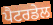
ਪੈਟਰਡੇਲ